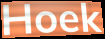
Hoek